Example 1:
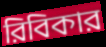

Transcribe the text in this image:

রিবিকার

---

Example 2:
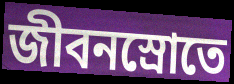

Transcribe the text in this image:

জীবনস্রোতে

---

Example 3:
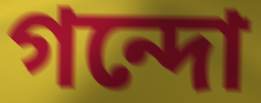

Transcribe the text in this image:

গন্দো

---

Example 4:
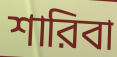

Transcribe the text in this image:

শারিবা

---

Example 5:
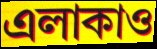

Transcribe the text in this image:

এলাকাও